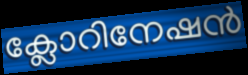
ക്ലോറിനേഷൻ